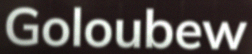
Goloubew